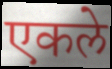
एकले